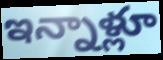
ఇన్నాళ్లూ